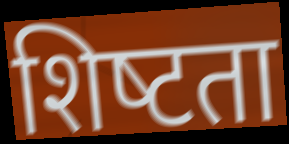
शिष्‍टता